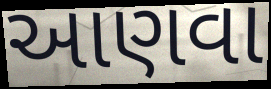
આણવા